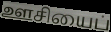
ஊசியைப்